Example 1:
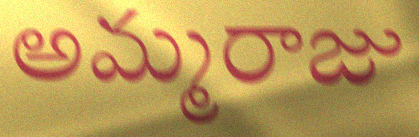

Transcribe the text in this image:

అమ్మరాజు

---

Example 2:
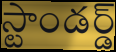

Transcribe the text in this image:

స్టాండర్డ్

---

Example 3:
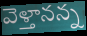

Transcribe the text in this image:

వెళ్తానన్న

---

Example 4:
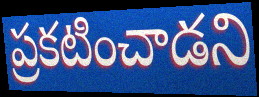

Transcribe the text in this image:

ప్రకటించాడని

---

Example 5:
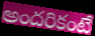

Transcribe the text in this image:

అందరికంటే